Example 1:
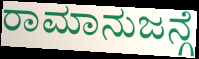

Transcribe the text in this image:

ರಾಮಾನುಜನ್ಗೆ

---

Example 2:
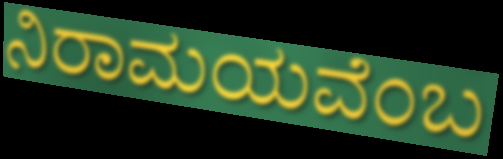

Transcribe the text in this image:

ನಿರಾಮಯವೆಂಬ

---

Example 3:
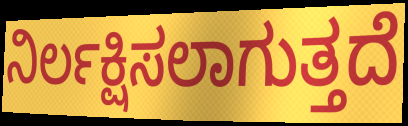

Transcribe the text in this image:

ನಿರ್ಲಕ್ಷಿಸಲಾಗುತ್ತದೆ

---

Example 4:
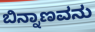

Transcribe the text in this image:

ಬಿನ್ನಾಣವನು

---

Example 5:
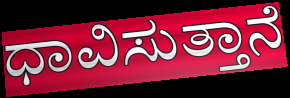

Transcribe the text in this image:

ಧಾವಿಸುತ್ತಾನೆ